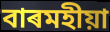
বাৰমহীয়া